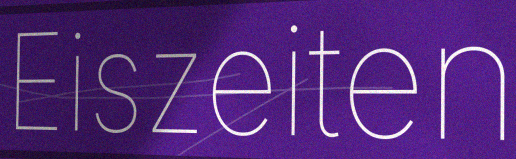
Eiszeiten